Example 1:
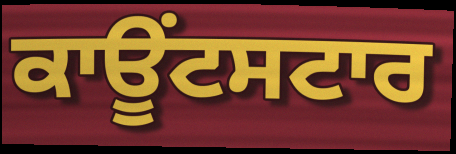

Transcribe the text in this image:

ਕਾਊਂਟਸਟਾਰ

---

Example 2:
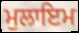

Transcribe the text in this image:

ਮੁਲਾਇਮ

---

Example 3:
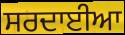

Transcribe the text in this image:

ਸਰਦਾਈਆ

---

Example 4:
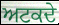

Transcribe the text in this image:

ਅਟਕਦੇ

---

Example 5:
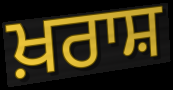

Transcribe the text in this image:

ਖ਼ਰਾਸ਼